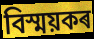
বিস্ময়কৰ